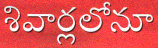
శివార్లలోనూ